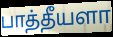
பாத்தீயளா